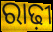
ରାଢ଼ୀ